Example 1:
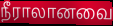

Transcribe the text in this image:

நீராலானவை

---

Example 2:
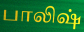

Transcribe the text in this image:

பாலிஷ்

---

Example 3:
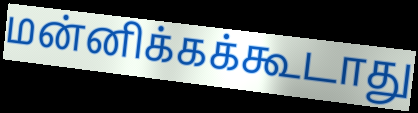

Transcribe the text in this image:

மன்னிக்கக்கூடாது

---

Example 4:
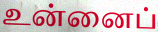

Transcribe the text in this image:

உன்னைப்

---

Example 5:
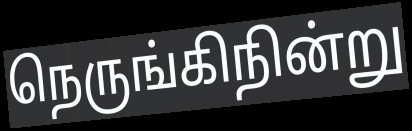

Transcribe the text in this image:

நெருங்கிநின்று